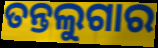
ତନ୍ତଲୁଗାର